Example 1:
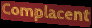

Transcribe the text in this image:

Complacent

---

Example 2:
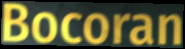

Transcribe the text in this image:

Bocoran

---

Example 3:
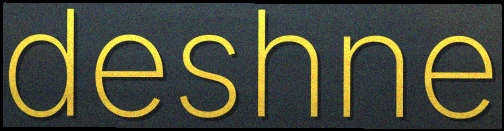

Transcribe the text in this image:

deshne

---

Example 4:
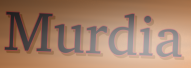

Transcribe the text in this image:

Murdia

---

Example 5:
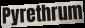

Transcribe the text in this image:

Pyrethrum